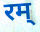
रम्